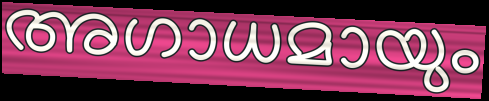
അഗാധമായും